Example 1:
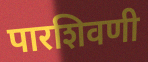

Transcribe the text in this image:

पारशिवणी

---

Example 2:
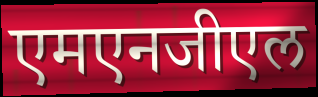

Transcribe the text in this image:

एमएनजीएल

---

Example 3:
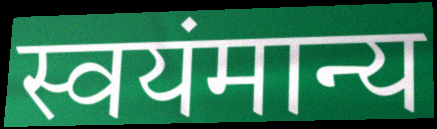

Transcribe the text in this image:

स्वयंमान्य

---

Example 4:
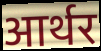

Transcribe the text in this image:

आर्थर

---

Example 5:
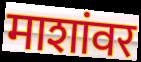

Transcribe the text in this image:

माशांवर